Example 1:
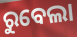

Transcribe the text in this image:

ରୁବେଲା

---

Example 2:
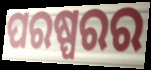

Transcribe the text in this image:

ପରଷ୍ପରର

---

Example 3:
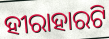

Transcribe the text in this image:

ହୀରାହାରଟି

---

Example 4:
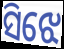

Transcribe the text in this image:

ସିଝେ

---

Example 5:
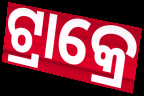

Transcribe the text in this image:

ଟ୍ରାକ୍ରେ